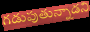
గడుపుతున్నాడని